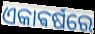
ଏକାଵର୍ଷରେ